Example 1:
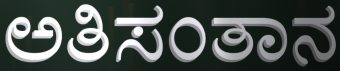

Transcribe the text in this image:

ಅತಿಸಂತಾನ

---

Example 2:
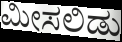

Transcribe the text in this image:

ಮೀಸಲಿಡು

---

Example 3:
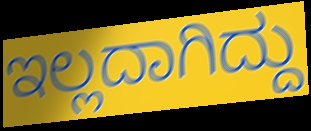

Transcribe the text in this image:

ಇಲ್ಲದಾಗಿದ್ದು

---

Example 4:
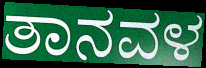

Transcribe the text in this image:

ತಾನವಳ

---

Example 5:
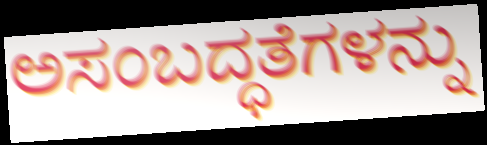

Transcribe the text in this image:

ಅಸಂಬದ್ಧತೆಗಳನ್ನು